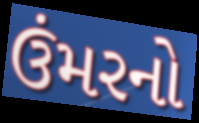
ઉંમરનો